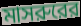
মাসরুরের